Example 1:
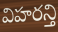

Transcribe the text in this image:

విహరన్తి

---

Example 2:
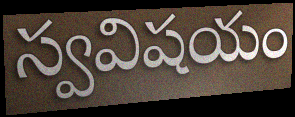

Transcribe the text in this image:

స్వవిషయం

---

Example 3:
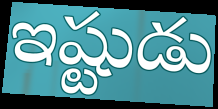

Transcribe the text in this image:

ఇష్టుడు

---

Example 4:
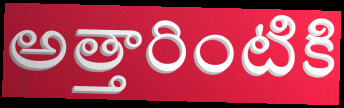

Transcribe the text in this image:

అత్తారింటికి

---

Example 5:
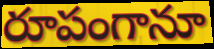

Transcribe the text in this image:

రూపంగానూ